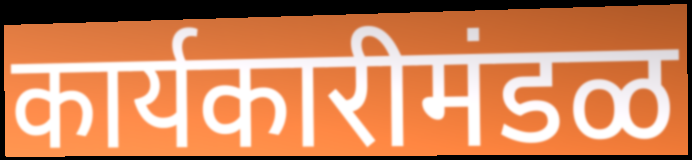
कार्यकारीमंडळ